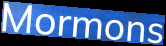
Mormons